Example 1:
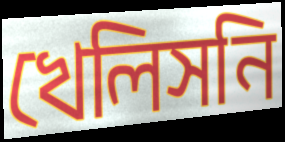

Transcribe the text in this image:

খেলিসনি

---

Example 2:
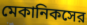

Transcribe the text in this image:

মেকানিকসের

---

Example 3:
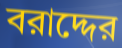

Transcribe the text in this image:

বরাদ্দের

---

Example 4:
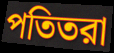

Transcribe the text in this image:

পতিতরা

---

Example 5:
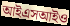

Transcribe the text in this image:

আইএসআইও